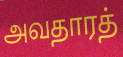
அவதாரத்